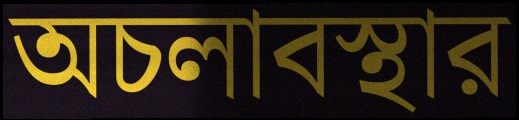
অচলাবস্থার